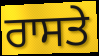
ਰਾਸਤੇ